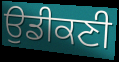
ਉਡੀਕਣੀ